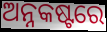
ଅନ୍ନକଷ୍ଟରେ